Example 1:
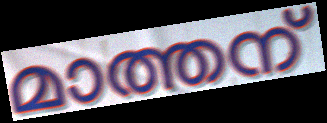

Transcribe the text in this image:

മാത്തന്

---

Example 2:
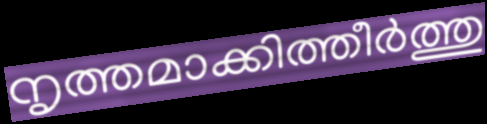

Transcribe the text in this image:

നൃത്തമാക്കിത്തീർത്തു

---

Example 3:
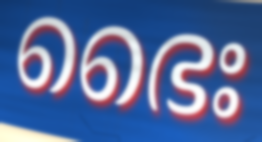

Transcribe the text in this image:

ഭൈഃ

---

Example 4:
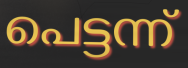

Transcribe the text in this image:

പെട്ടന്ന്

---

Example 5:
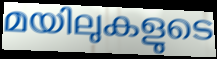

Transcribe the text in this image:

മയിലുകളുടെ